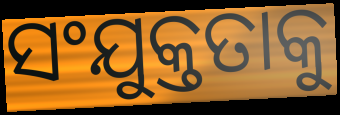
ସଂଯୁକ୍ତତାକୁ